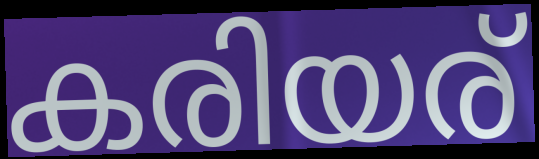
കരിയര്